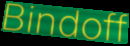
Bindoff